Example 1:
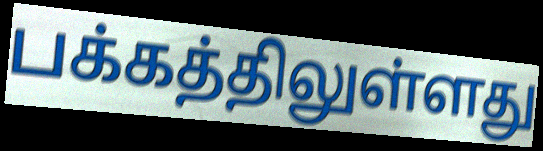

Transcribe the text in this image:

பக்கத்திலுள்ளது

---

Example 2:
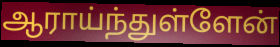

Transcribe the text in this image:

ஆராய்ந்துள்ளேன்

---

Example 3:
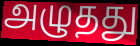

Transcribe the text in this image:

அழுதது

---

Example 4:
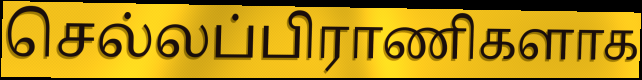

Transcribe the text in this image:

செல்லப்பிராணிகளாக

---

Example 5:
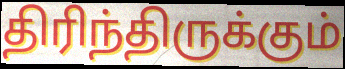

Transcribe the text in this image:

திரிந்திருக்கும்